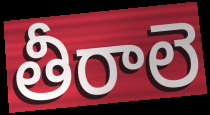
తీరాలె